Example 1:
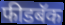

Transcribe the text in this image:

फीडबॅक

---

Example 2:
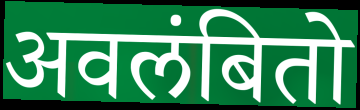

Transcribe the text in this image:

अवलंबितो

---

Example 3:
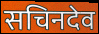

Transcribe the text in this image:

सचिनदेव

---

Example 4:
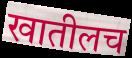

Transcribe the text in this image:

खातीलच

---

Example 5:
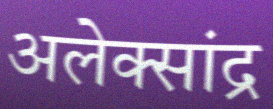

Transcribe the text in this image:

अलेक्सांद्र